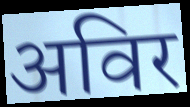
अविर